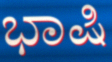
ಭಾಷಿ